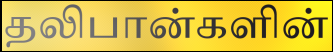
தலிபான்களின்